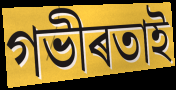
গভীৰতাই